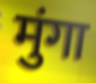
मुंगा